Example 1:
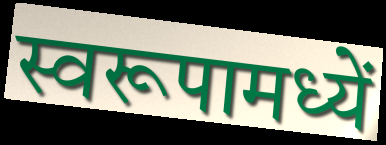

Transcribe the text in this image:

स्वरूपामध्यें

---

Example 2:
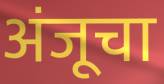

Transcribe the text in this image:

अंजूचा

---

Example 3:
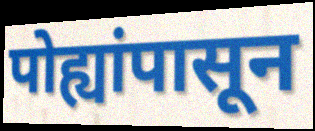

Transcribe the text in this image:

पोह्यांपासून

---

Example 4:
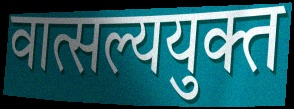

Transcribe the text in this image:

वात्सल्ययुक्त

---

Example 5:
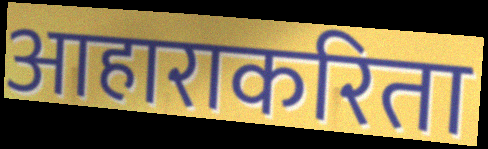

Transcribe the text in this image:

आहाराकरिता